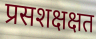
प्रसशक्षक्षत